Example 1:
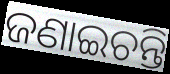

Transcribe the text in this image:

ଜଣାଇଚନ୍ତି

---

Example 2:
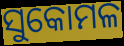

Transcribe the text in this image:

ସୁକୋମଳ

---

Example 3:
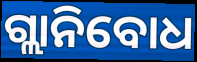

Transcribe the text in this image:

ଗ୍ଲାନିବୋଧ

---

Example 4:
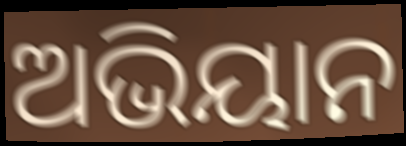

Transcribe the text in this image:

ଅଭିୟାନ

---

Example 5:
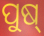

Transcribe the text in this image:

ପୁଷ୍